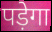
पड़ेगा